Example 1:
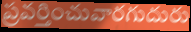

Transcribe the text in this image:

ప్రవర్తించువారగుదురు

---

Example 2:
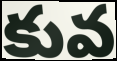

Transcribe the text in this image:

కువ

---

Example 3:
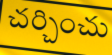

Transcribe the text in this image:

చర్చించు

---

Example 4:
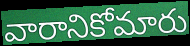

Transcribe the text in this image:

వారానికోమారు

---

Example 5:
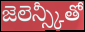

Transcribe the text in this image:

జెలెన్స్కీతో